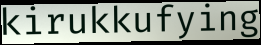
kirukkufying